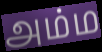
அம்ம